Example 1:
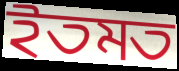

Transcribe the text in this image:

ইতমত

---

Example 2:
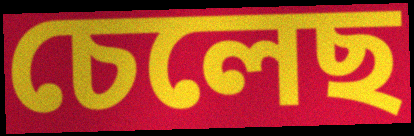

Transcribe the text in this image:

চেলেছ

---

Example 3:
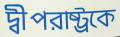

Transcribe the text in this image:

দ্বীপরাষ্ট্রকে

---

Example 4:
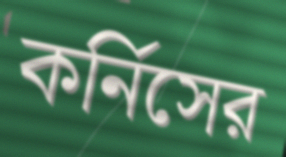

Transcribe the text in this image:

কর্নিসের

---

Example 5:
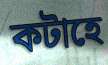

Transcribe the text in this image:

কটাহে